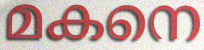
മകനെ